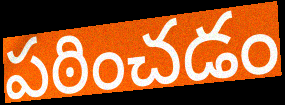
పఠించడం